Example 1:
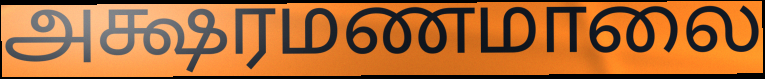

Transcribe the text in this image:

அக்ஷரமணமாலை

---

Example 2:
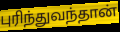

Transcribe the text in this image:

புரிந்துவந்தான்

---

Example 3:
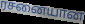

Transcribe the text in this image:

ரசனையான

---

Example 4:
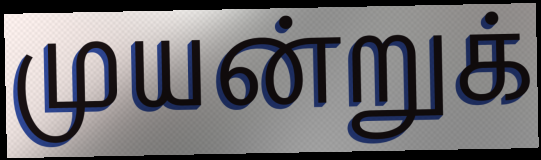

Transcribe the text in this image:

முயன்றுக்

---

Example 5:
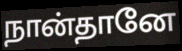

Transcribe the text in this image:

நான்தானே